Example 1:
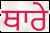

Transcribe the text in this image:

ਥਾਰੇ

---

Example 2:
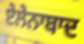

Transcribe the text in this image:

ਏਲੇਨਾਬਾਦ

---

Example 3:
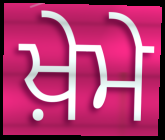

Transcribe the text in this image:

ਖ਼ੇਮੇ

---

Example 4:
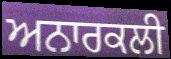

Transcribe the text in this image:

ਅਨਾਰਕਲੀ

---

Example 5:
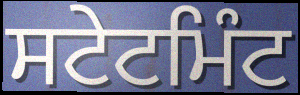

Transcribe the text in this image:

ਸਟੇਟਮਿੰਟ